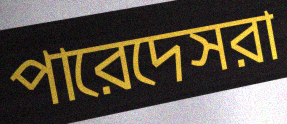
পারেদেসরা